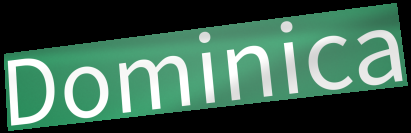
Dominica